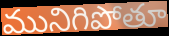
మునిగిపోతూ